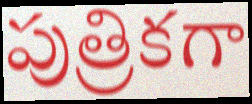
పుత్రికగా